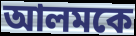
আলমকে